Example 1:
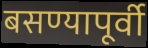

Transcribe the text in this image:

बसण्यापूर्वी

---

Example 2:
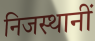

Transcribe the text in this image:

निजस्थानीं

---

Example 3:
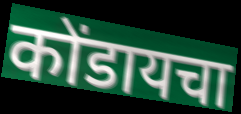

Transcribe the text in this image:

कोंडायचा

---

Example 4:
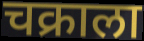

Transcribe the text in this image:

चक्राला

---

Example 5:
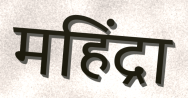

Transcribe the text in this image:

महिंद्रा